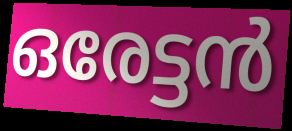
ഒരേട്ടൻ